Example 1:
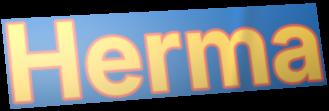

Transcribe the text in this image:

Herma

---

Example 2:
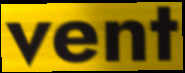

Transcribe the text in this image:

vent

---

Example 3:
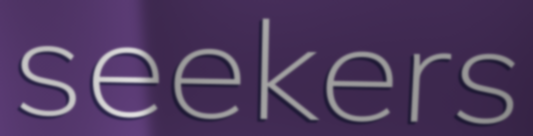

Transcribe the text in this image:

seekers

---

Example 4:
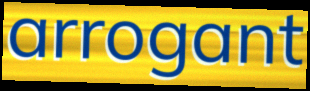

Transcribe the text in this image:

arrogant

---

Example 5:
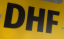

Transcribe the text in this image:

DHF